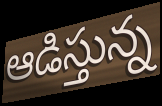
ఆడిస్తున్న